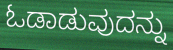
ಓಡಾಡುವುದನ್ನು